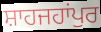
ਸ਼ਾਹਜਹਾਂਪੁਰ